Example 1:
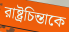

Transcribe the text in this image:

রাষ্ট্রচিন্তাকে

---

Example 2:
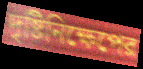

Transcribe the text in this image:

দৃষ্টিনিক্ষেপের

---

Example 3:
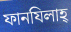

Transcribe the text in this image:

ফানযিলাহ্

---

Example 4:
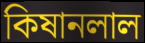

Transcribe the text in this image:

কিষানলাল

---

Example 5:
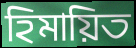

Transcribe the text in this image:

হিমায়িত